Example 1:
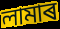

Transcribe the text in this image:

লামাৰ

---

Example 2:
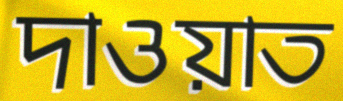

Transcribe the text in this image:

দাওয়াত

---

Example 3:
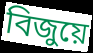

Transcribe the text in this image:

বিজুয়ে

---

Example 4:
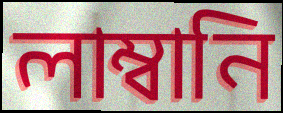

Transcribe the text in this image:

লাম্বানি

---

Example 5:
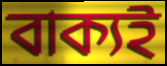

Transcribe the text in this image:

বাক্যই